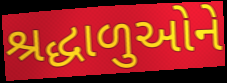
શ્રદ્ધાળુઓને